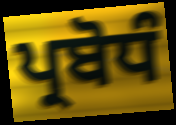
ਪ੍ਰਬੋਧੰ